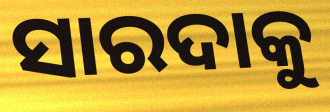
ସାରଦାକୁ